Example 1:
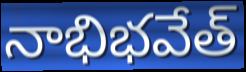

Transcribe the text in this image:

నాభిభవేత్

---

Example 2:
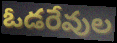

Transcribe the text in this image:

ఓడరేవుల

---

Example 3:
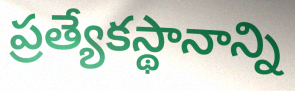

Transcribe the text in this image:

ప్రత్యేకస్థానాన్ని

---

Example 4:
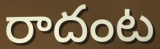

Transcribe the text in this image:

రాదంట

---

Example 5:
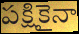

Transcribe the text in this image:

పక్షికైనా